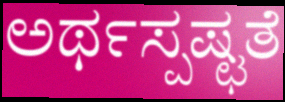
ಅರ್ಥಸ್ಪಷ್ಟತೆ